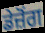
ਡੇਜ਼ੋਂਗ